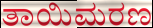
ತಾಯಿಮರಣ